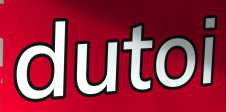
dutoi